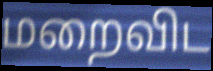
மறைவிட